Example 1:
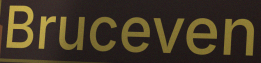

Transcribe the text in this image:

Bruceven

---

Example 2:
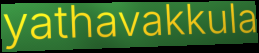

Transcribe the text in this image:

yathavakkula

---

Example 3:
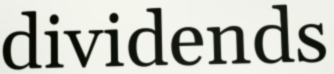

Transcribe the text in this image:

dividends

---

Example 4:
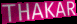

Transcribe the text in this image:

THAKAR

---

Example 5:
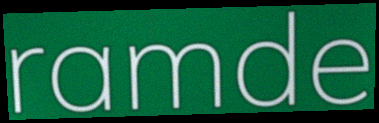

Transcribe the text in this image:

ramde